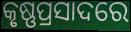
କୃଷ୍ଣପ୍ରସାଦରେ